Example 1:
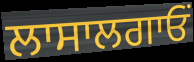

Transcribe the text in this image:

ਲਾਸਾਲਗਾਓਂ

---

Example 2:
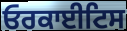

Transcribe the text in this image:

ਓਰਕਾਈਟਿਸ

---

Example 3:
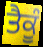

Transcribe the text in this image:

ਤੈਕੂੰ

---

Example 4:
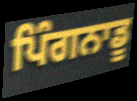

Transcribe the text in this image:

ਪਿੰਗਨਾਡੂ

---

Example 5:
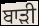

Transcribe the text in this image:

ਬਾੜੀ